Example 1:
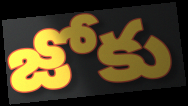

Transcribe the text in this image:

జోకు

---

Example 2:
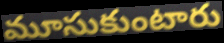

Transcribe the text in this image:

మూసుకుంటారు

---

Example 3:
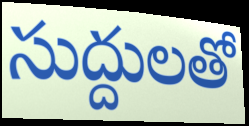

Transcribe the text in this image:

సుద్దులతో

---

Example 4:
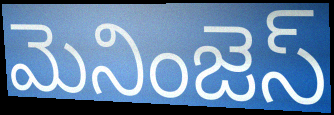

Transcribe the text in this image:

మెనింజెస్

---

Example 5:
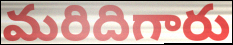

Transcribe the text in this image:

మరిదిగారు